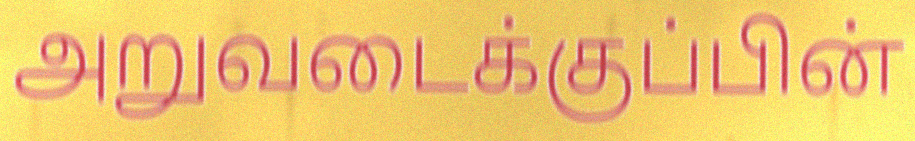
அறுவடைக்குப்பின்